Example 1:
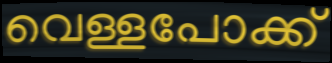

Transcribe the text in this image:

വെള്ളപോക്ക്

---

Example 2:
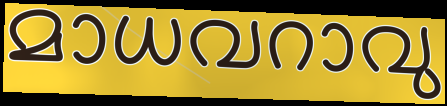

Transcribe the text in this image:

മാധവറാവു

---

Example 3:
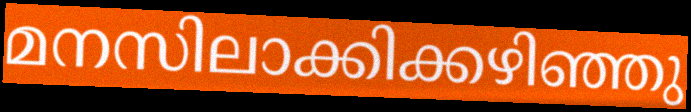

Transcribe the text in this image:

മനസിലാക്കിക്കഴിഞ്ഞു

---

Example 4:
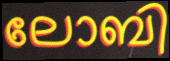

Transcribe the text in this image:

ലോബി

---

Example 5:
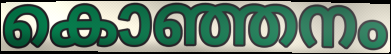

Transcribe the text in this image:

കൊഞ്ഞനം